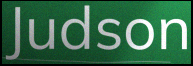
Judson